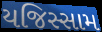
યજિસ્સામ